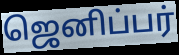
ஜெனிப்பர்